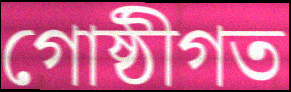
গোষ্ঠীগত